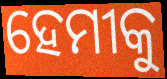
ହେମୀକୁ